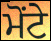
ਮੋਂਟੇ